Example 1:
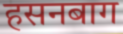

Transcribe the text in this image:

हसनबाग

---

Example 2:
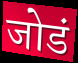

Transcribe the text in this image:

जोडं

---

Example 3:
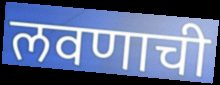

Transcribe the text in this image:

लवणाची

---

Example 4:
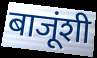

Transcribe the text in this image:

बाजूंशी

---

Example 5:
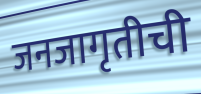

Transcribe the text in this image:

जनजागृतीची